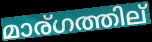
മാര്ഗത്തില്